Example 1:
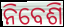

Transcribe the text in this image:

ନିବେଶି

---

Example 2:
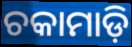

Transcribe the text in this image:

ଚକାମାଡ଼ି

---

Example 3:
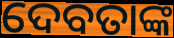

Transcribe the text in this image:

ଦେବତାଙ୍କ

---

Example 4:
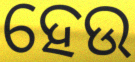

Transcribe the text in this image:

ହେଉ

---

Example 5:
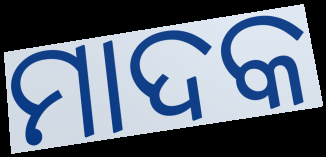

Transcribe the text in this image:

ମାଦକ